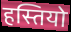
हस्तियो